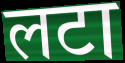
लटा